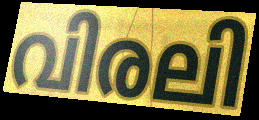
വിരലി